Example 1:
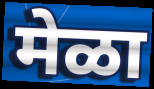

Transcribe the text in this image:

मेळा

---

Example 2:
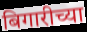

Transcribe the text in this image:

बिगारीच्या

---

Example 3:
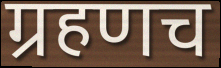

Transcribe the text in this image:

ग्रहणच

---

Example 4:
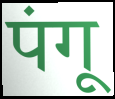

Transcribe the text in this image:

पंगू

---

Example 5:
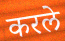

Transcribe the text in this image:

करले